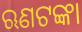
ଋଣଟଙ୍କା